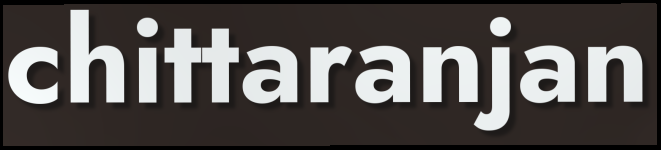
chittaranjan